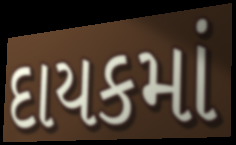
દાયકમાં